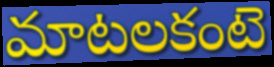
మాటలకంటె